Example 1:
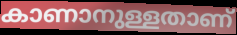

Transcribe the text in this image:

കാണാനുള്ളതാണ്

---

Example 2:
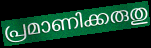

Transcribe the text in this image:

പ്രമാണിക്കരുതു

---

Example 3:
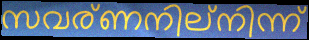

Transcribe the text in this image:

സവര്ണനില്നിന്ന്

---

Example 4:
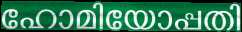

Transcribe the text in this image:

ഹോമിയോപ്പതി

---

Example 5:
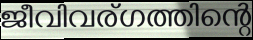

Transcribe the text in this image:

ജീവിവര്ഗത്തിന്റെ